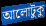
আলোটুকু